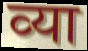
व्‍या